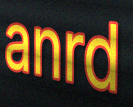
anrd